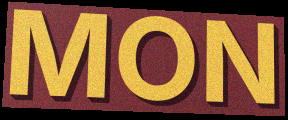
MON